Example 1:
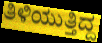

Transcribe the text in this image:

ತಿಳಿಯುತ್ತಿದ್ದ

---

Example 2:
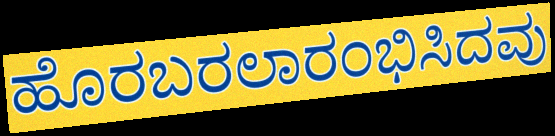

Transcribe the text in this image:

ಹೊರಬರಲಾರಂಭಿಸಿದವು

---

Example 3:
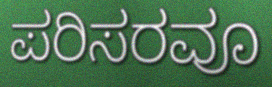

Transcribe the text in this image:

ಪರಿಸರವೂ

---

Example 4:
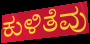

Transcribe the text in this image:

ಕುಳಿತೆವು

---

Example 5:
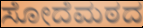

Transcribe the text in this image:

ಸೋದೆಮಠದ